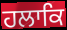
ਹਲਾਕਿ